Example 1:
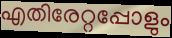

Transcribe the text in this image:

എതിരേറ്റപ്പോളും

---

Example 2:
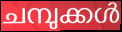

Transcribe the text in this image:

ചമ്പുക്കൾ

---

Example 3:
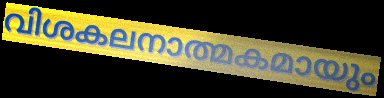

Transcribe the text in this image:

വിശകലനാത്മകമായും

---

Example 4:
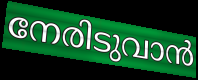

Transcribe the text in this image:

നേരിടുവാൻ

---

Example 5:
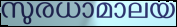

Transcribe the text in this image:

സുരധാമാലയ